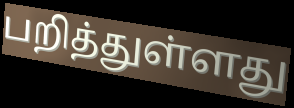
பறித்துள்ளது